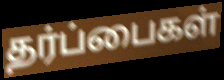
தர்ப்பைகள்